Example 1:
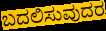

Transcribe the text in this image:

ಬದಲಿಸುವುದರ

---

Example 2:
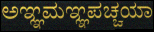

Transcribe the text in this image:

ಅಞ್ಞಮಞ್ಞಪಚ್ಚಯಾ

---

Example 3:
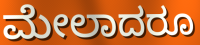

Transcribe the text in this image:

ಮೇಲಾದರೂ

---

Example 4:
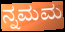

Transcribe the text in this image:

ನ್ನಮಮ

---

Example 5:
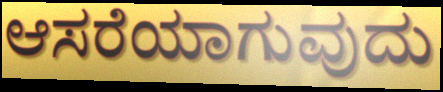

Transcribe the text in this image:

ಆಸರೆಯಾಗುವುದು